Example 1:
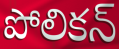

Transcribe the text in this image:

పోలికన్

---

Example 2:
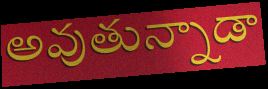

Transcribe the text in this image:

అవుతున్నాడా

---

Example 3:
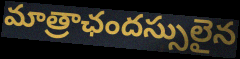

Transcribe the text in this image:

మాత్రాఛందస్సులైన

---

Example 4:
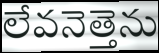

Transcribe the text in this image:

లేవనెత్తెను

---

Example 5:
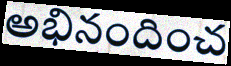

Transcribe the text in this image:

అభినందించ